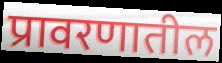
प्रावरणातील